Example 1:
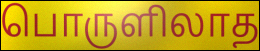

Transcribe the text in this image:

பொருளிலாத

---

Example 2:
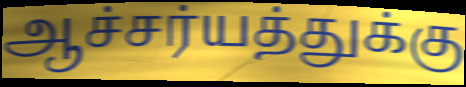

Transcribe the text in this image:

ஆச்சர்யத்துக்கு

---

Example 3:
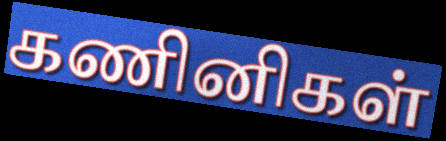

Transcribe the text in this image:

கணினிகள்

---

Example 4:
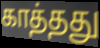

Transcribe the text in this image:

காத்தது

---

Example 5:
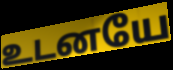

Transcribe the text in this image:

உடனயே